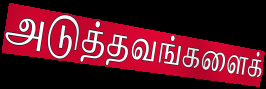
அடுத்தவங்களைக்